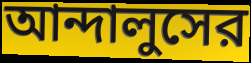
আন্দালুসের